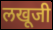
लखूजी